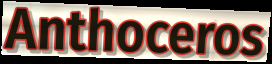
Anthoceros